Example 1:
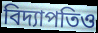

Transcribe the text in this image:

বিদ্যাপতিও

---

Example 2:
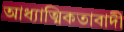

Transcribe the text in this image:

আধ্যাত্মিকতাবাদী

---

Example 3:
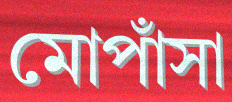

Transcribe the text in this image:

মোপাঁসা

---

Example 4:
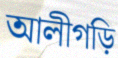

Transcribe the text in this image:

আলীগড়ি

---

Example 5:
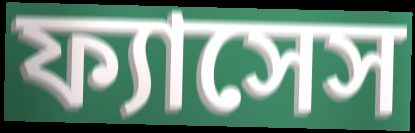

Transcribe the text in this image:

ফ্যাসেস